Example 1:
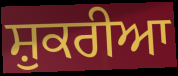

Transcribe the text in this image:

ਸ਼ੁਕਰੀਆ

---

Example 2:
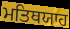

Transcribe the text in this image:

ਮਤਿਥਯਾਹ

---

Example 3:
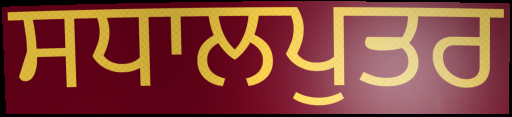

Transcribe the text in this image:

ਸਧਾਲਪੁਤਰ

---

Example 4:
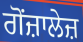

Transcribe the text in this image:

ਗੋਂਜ਼ਾਲੇਜ਼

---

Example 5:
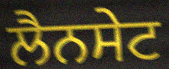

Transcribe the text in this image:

ਲੈਨਸੇਟ